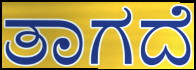
ತಾಗದೆ